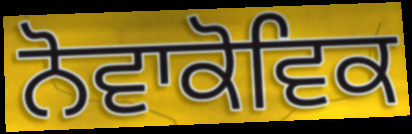
ਨੋਵਾਕੋਵਿਕ